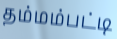
தம்மம்பட்டி